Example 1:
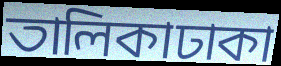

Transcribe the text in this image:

তালিকাঢাকা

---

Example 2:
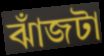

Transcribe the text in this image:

ঝাঁজটা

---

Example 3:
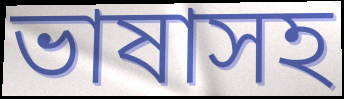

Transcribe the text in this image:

ভাষাসহ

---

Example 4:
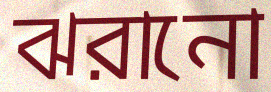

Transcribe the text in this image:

ঝরানো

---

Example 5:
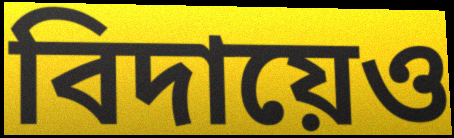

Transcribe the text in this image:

বিদায়েও